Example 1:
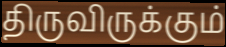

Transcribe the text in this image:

திருவிருக்கும்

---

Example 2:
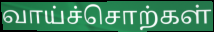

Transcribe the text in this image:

வாய்ச்சொற்கள்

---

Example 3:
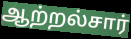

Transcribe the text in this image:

ஆற்றல்சார்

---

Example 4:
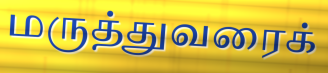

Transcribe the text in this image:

மருத்துவரைக்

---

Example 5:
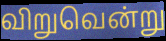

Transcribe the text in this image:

விறுவென்று